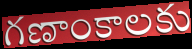
గణాంకాలకు